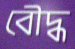
বৌদ্ধ